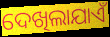
ଦେଖିଲାଯାଏଁ